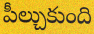
పీల్చుకుంది